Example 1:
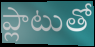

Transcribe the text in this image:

ప్లాటుతో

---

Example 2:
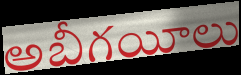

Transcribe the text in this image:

అబీగయీలు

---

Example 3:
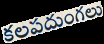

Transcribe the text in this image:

కలపదుంగలు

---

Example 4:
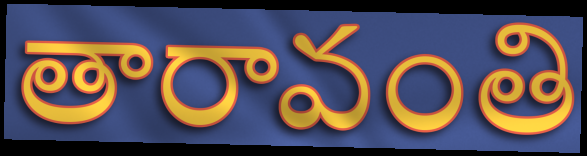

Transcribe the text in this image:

తారావంతి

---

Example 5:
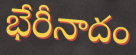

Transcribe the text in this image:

భేరీనాదం